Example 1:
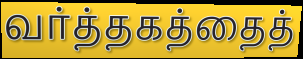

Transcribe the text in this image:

வர்த்தகத்தைத்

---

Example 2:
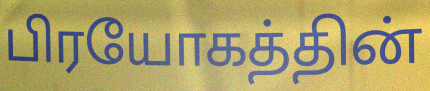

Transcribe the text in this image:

பிரயோகத்தின்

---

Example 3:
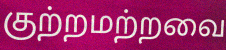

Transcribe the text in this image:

குற்றமற்றவை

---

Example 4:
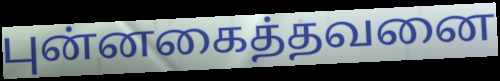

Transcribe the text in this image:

புன்னகைத்தவனை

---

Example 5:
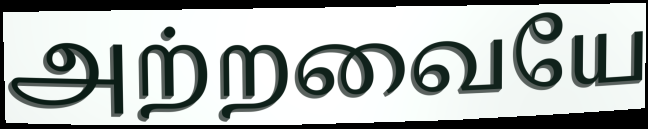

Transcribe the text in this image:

அற்றவையே